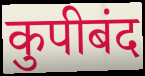
कुपीबंद